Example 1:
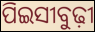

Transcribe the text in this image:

ପିଇସୀବୁଢ଼ୀ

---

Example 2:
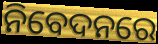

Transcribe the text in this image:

ନିବେଦନରେ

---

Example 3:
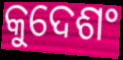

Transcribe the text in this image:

କୁଦେଶଂ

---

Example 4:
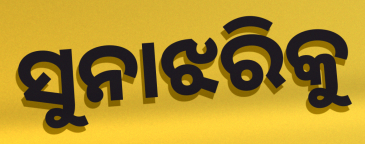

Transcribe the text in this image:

ସୁନାଝରିକୁ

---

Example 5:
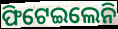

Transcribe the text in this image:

ଫିଟେଇଲେନି